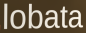
lobata